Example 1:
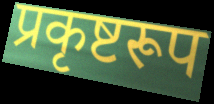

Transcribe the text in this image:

प्रकृष्टरूप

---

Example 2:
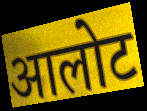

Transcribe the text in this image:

आलोट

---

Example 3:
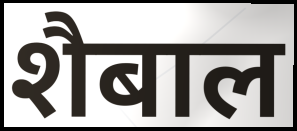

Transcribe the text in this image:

शैबाल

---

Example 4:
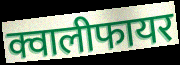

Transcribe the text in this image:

क्‍वालीफायर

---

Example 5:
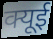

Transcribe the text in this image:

क्यूई